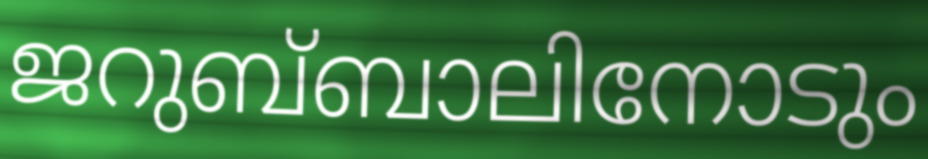
ജറുബ്‌ബാലിനോടും